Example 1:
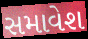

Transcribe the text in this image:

સમાવેશ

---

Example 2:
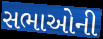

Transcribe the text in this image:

સભાઓની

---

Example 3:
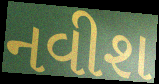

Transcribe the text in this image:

નવીશ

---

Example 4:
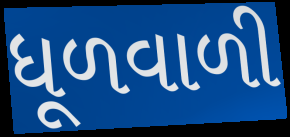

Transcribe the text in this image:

ધૂળવાળી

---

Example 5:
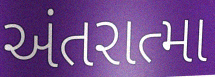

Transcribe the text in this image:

અંતરાત્મા